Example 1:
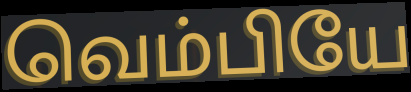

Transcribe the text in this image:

வெம்பியே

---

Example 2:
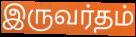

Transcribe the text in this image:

இருவர்தம்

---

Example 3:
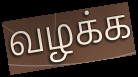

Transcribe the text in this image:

வழக்க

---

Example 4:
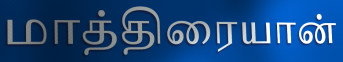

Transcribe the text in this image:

மாத்திரையான்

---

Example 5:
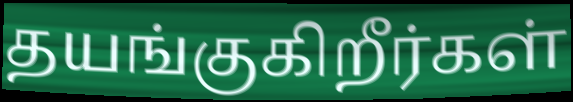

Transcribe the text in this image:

தயங்குகிறீர்கள்